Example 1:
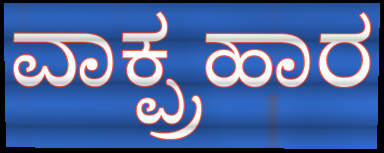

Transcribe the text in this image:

ವಾಕ್ಪ್ರಹಾರ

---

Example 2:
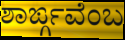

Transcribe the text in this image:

ಶಾರ್ಙ್ಗವೆಂಬ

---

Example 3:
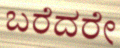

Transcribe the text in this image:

ಬರೆದರೇ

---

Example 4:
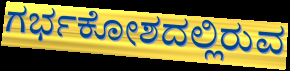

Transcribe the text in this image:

ಗರ್ಭಕೋಶದಲ್ಲಿರುವ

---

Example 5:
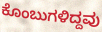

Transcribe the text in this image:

ಕೊಂಬುಗಳಿದ್ದವು